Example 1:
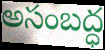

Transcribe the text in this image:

అసంబద్ధ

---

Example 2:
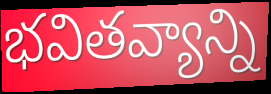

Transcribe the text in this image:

భవితవ్యాన్ని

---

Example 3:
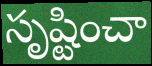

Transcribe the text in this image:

సృష్టించా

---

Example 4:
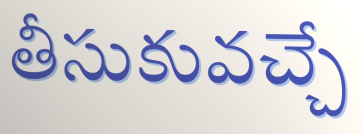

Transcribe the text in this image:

తీసుకువచ్చే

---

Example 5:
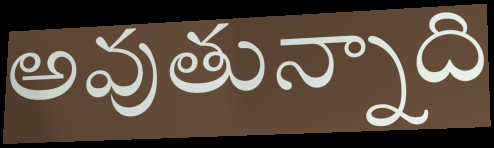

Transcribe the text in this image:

అవుతున్నాది